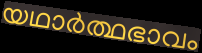
യഥാർത്ഥഭാവം